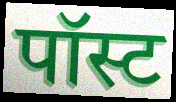
पॉस्ट